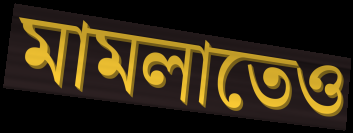
মামলাতেও